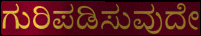
ಗುರಿಪಡಿಸುವುದೇ